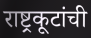
राष्ट्रकूटांची